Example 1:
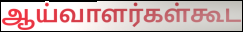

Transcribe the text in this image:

ஆய்வாளர்கள்கூட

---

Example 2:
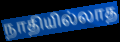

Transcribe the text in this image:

நாதியில்லாத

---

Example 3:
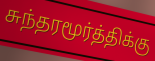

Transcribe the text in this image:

சுந்தரமூர்த்திக்கு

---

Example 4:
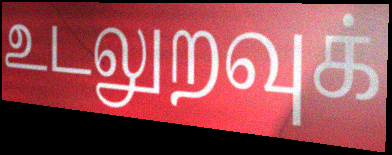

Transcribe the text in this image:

உடலுறவுக்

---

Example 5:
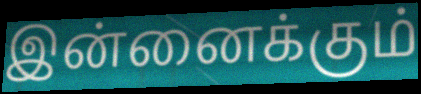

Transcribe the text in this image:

இன்னைக்கும்